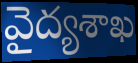
వైద్యశాఖ